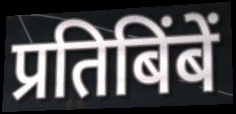
प्रतिबिंबें